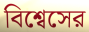
বিশ্বেসের